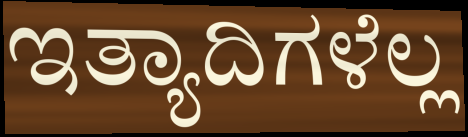
ಇತ್ಯಾದಿಗಳೆಲ್ಲ